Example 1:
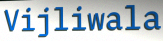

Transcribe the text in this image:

Vijliwala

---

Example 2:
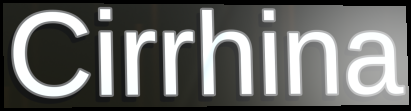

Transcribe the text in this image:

Cirrhina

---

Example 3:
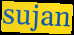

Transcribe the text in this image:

sujan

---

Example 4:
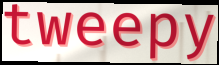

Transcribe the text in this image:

tweepy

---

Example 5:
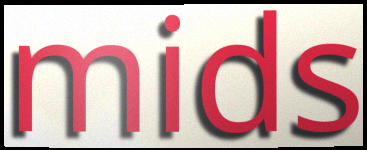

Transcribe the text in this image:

mids